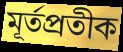
মূর্তপ্রতীক